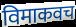
विमाकवच